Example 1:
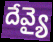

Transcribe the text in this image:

దేవ్యై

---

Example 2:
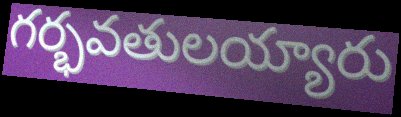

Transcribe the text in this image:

గర్భవతులయ్యారు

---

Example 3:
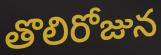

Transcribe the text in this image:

తొలిరోజున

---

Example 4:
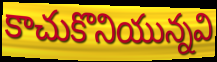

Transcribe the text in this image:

కాచుకొనియున్నవి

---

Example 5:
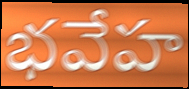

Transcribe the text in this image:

భవేహ